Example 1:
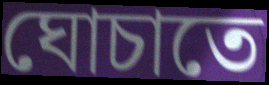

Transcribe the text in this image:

ঘোচাতে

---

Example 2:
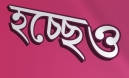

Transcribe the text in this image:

হচ্ছেও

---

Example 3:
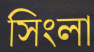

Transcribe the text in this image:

সিংলা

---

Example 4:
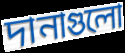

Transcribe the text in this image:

দানাগুলো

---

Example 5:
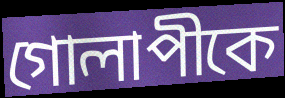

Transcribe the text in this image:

গোলাপীকে